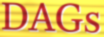
DAGs